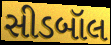
સીડબૉલ